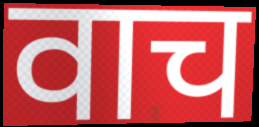
वाच